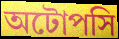
অটোপসি